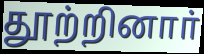
தூற்றினார்